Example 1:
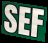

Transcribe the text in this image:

SEF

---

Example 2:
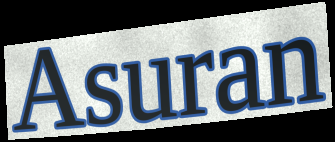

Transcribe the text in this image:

Asuran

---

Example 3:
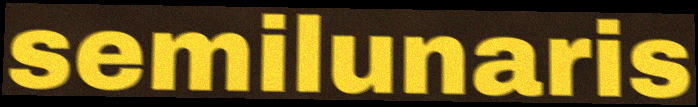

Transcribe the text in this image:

semilunaris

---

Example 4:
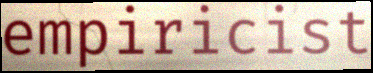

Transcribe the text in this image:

empiricist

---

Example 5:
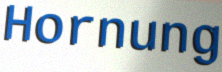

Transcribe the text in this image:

Hornung